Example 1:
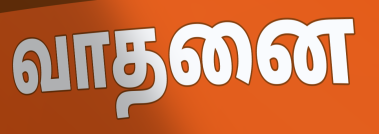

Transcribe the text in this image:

வாதனை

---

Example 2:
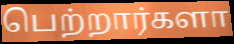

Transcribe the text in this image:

பெற்றார்களா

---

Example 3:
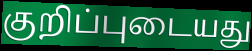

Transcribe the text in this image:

குறிப்புடையது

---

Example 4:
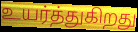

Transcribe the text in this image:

உயர்த்துகிறது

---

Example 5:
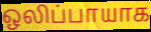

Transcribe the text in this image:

ஒலிப்பாயாக